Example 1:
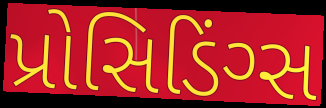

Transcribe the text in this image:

પ્રોસિડિંગ્સ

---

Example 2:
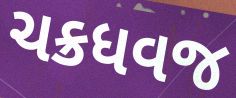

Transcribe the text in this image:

ચક્રધવજ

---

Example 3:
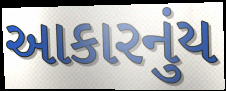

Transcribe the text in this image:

આકારનુંય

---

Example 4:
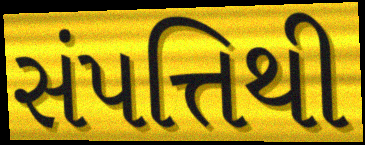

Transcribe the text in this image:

સંપત્તિથી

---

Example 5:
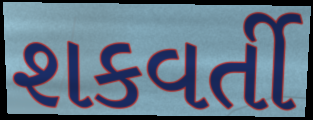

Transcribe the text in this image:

શકવર્તી